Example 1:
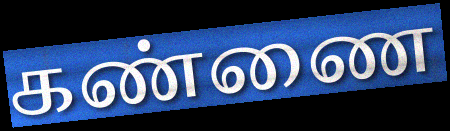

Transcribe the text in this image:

கண்ணை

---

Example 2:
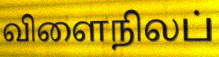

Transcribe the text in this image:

விளைநிலப்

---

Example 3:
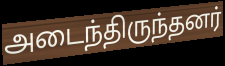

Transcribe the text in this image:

அடைந்திருந்தனர்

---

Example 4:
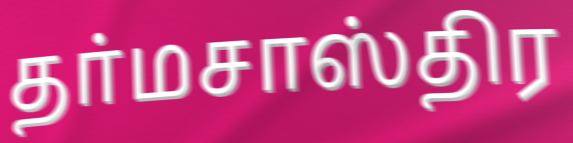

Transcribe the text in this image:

தர்மசாஸ்திர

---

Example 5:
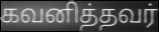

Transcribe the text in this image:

கவனித்தவர்